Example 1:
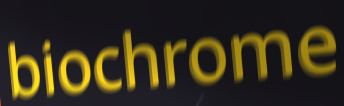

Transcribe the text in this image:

biochrome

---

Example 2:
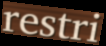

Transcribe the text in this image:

restri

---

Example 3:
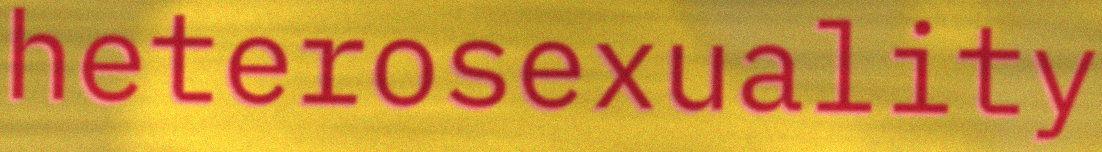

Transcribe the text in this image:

heterosexuality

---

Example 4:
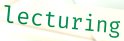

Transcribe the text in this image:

lecturing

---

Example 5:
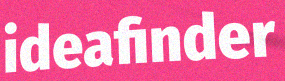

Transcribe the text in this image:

ideafinder